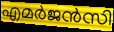
എമർജൻസി